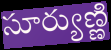
సూర్యుణ్ణి